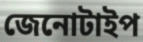
জেনোটাইপ